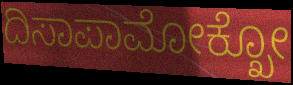
ದಿಸಾಪಾಮೋಕ್ಖೋ